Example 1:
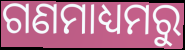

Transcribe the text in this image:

ଗଣମାଧ୍ୟମରୁ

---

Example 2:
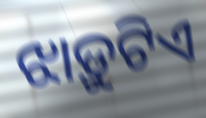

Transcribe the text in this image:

ଝାଡ଼ୁଟିଏ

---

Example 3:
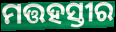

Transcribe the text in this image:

ମତ୍ତହସ୍ତୀର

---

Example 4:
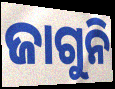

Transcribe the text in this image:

ଜାଗୁନି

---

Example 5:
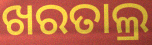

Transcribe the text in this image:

ଖରତାଲ୍ର